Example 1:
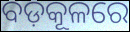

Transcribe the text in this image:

ବଡ଼କୂଳରେ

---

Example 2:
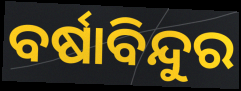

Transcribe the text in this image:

ବର୍ଷାବିନ୍ଦୁର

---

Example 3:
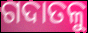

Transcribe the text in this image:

ଗଦାତଳୁ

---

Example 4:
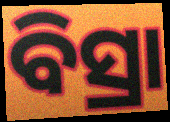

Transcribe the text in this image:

ବିସ୍ରା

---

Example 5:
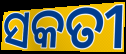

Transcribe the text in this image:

ସକତୀ